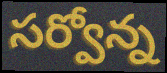
సర్వోన్న